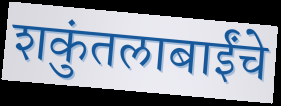
शकुंतलाबाईंचे